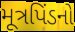
મૂત્રપિંડનો